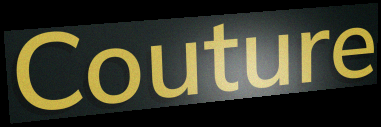
Couture